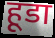
हूडा